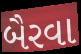
બૈરવા